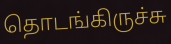
தொடங்கிருச்சு